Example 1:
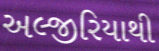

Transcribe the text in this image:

અલ્જીરિયાથી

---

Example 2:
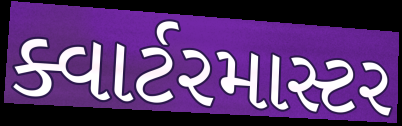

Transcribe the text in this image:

ક્વાર્ટરમાસ્ટર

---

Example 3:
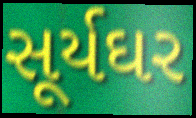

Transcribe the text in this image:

સૂર્યઘર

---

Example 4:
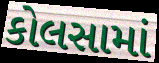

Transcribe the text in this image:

કોલસામાં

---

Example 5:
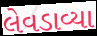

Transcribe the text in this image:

લેવડાવ્યા